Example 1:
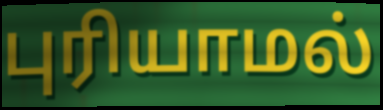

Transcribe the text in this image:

புரியாமல்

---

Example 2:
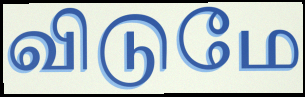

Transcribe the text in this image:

விடுமே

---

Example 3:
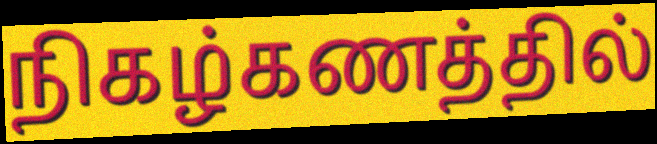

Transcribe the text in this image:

நிகழ்கணத்தில்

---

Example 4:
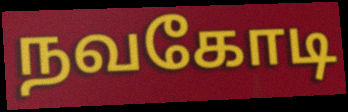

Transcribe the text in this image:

நவகோடி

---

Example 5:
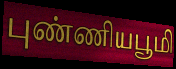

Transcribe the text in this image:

புண்ணியபூமி